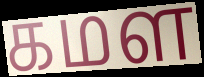
கமள